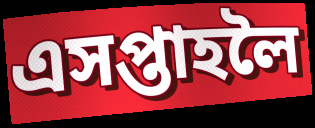
এসপ্তাহলৈ